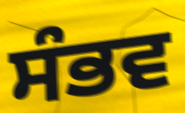
ਸੰਭਵ